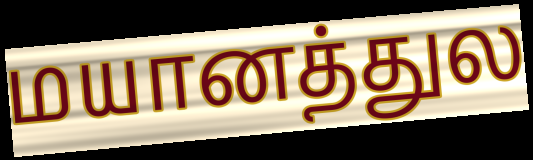
மயானத்துல